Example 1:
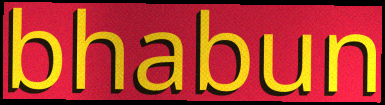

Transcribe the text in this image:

bhabun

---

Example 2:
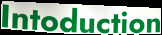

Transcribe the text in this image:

Intoduction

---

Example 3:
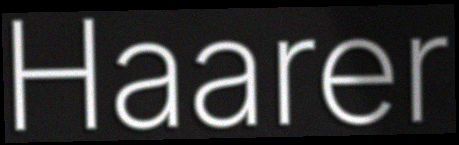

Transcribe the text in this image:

Haarer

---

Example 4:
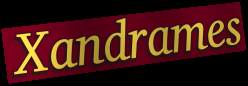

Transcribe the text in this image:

Xandrames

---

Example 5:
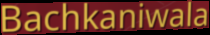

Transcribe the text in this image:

Bachkaniwala